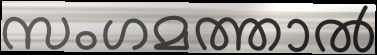
സംഗമത്താൽ